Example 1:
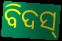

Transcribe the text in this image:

ବିଦସ୍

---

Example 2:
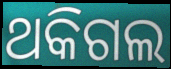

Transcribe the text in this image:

ଥକିଗଲ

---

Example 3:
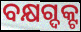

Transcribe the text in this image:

ବକ୍ଷଗ୍ଦକ୍ଟ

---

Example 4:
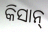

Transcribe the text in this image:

କିସାନ୍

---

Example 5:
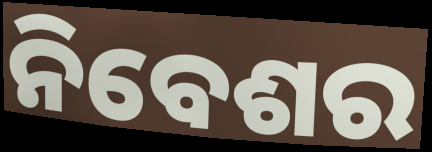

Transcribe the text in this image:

ନିବେଶର